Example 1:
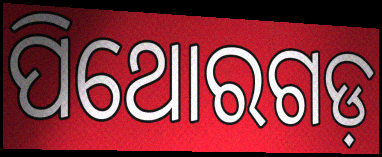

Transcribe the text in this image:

ପିଥୋରଗଡ଼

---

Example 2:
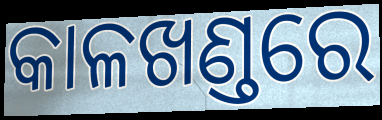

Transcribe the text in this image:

କାଳଖଣ୍ଡରେ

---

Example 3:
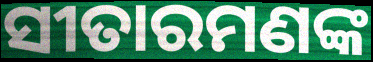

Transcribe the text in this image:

ସୀତାରମଣଙ୍କ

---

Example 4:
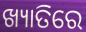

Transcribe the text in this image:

ଖ୍ୟାତିରେ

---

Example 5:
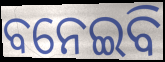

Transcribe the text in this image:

ବନେଇବି